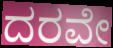
ದರವೇ